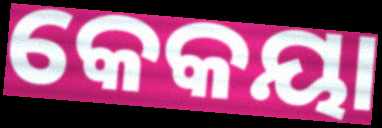
କେକୟା